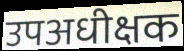
उपअधीक्षक